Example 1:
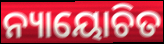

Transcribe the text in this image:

ନ୍ୟାୟୋଚିତ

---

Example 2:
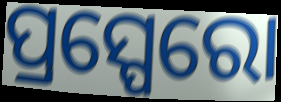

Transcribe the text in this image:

ପ୍ରସ୍ପେରୋ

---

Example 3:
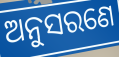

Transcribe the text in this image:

ଅନୁସରଣେ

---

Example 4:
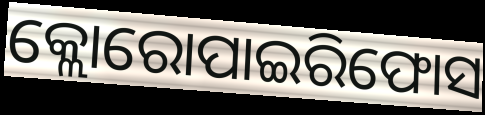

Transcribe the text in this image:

କ୍ଲୋରୋପାଇରିଫୋସ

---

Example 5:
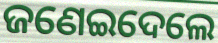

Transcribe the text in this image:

ଜଣେଇଦେଲେ